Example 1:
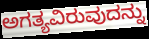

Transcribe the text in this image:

ಅಗತ್ಯವಿರುವುದನ್ನು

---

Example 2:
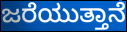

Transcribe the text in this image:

ಜರೆಯುತ್ತಾನೆ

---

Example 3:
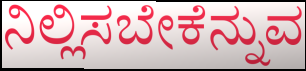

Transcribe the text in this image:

ನಿಲ್ಲಿಸಬೇಕೆನ್ನುವ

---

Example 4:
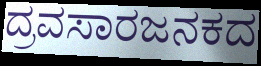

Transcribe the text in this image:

ದ್ರವಸಾರಜನಕದ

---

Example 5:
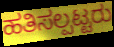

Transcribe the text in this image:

ಹತಿಸಲ್ಪಟ್ಟರು